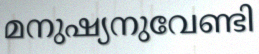
മനുഷ്യനുവേണ്ടി